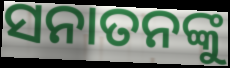
ସନାତନଙ୍କୁ